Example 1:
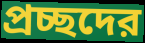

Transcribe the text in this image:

প্রচ্ছদের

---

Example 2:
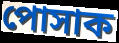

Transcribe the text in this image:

পোসাক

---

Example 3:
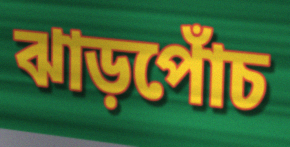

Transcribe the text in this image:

ঝাড়পোঁচ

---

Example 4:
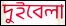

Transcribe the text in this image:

দুইবেলা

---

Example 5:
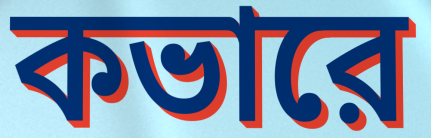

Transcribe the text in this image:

কভারে